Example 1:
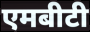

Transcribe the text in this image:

एमबीटी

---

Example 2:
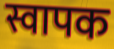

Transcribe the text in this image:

स्‍वापक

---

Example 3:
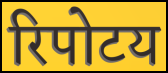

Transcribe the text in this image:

रिपोटय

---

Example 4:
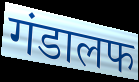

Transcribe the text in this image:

गंडालफ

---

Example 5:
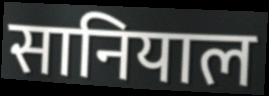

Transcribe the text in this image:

सानियाल